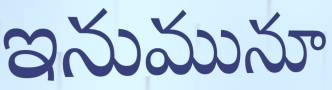
ఇనుమునూ